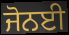
ਜੋਨਈ